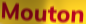
Mouton